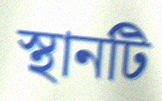
স্থানটি